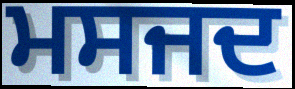
ਮਸਜਦ